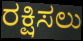
ರಕ್ಷಿಸಲು